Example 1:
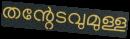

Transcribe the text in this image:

തന്റേടവുമുള്ള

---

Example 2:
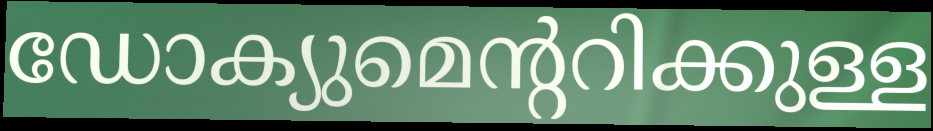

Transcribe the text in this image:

ഡോക്യുമെന്ററിക്കുള്ള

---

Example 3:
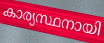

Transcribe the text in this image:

കാര്യസ്ഥനായി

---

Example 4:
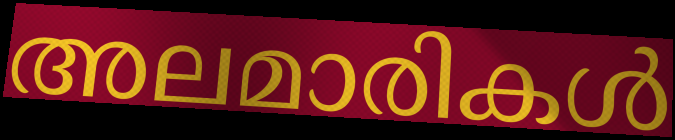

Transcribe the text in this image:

അലമാരികൾ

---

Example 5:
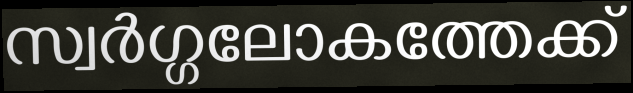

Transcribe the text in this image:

സ്വർഗ്ഗലോകത്തേക്ക്